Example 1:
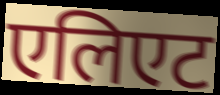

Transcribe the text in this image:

एलिएट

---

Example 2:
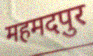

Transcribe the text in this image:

महमदपुर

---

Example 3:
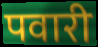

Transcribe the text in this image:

पवारी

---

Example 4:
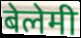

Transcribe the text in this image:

बेलेमी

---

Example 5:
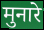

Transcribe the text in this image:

मुनारे